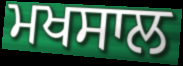
ਮਖਸਾਲ